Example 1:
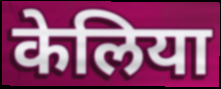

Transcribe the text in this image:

केलिया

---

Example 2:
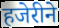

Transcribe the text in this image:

हजेरीने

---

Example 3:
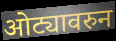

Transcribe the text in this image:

ओट्यावरुन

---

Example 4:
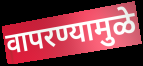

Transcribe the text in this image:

वापरण्यामुळे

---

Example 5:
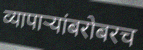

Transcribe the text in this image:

व्यापाऱ्यांबरोबरच